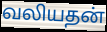
வலியதன்